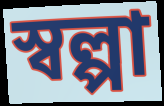
স্বল্পা